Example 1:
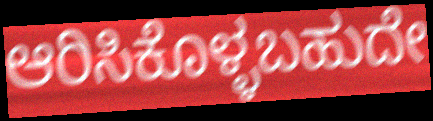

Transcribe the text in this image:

ಆರಿಸಿಕೊಳ್ಳಬಹುದೇ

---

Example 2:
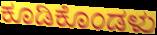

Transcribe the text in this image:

ಕೂಡಿಕೊಂಡಳು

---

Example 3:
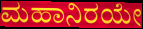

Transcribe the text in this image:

ಮಹಾನಿರಯೇ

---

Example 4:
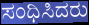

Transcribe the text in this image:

ಸಂಧಿಸಿದರು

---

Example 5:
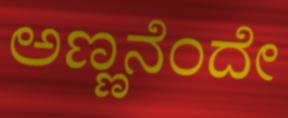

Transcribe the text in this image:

ಅಣ್ಣನೆಂದೇ